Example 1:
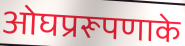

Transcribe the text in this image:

ओघप्ररूपणाके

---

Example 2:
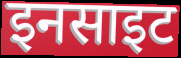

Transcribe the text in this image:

इनसाइट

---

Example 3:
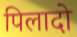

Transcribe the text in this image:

पिलादो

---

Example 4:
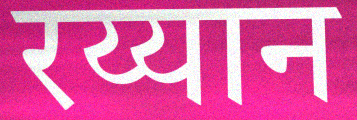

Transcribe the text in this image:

रय्यान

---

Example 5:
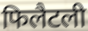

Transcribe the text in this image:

फिलैटली